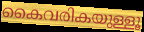
കൈവരികയുള്ളൂ